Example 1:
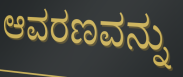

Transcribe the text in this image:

ಆವರಣವನ್ನು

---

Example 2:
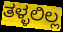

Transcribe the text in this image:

ತಳ್ಳಲಿಲ್ಲ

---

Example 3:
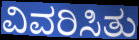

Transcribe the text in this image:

ವಿವರಿಸಿತು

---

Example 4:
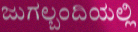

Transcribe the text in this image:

ಜುಗಲ್ಬಂದಿಯಲ್ಲಿ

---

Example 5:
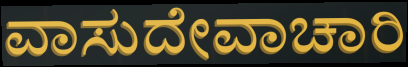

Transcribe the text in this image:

ವಾಸುದೇವಾಚಾರಿ